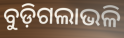
ବୁଡ଼ିଗଲାଭଳି